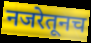
नजरेतूनच